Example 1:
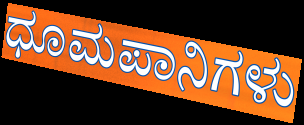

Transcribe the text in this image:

ಧೂಮಪಾನಿಗಳು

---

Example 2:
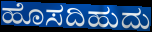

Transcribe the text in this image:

ಹೊಸದಿಹುದು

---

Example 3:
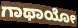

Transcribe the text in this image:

ಗಾಥಾಯೋ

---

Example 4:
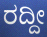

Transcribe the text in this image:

ರದ್ದೀ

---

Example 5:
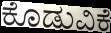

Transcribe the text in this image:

ಕೊಡುವಿಕೆ